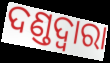
ଦଣ୍ଡଦ୍ୱାରା